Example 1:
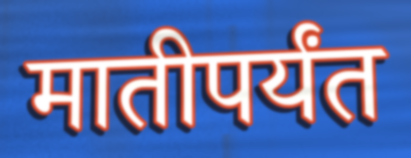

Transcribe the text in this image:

मातीपर्यंत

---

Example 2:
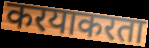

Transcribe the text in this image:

करयाकरता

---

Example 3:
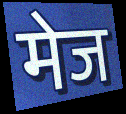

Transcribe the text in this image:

मेज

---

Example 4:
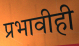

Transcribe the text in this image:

प्रभावीही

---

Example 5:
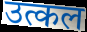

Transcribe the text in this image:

उत्कल